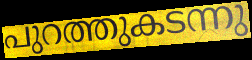
പുറത്തുകടന്നു